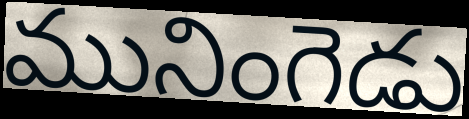
మునింగెడు